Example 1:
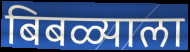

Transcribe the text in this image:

बिबळ्याला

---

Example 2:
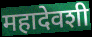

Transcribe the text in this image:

महादेवशी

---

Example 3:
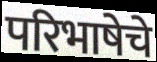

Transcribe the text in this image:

परिभाषेचे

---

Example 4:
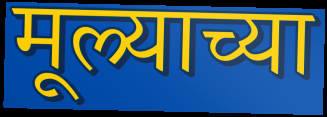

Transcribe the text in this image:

मूल्याच्या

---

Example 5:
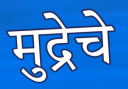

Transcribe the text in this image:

मुद्रेचे